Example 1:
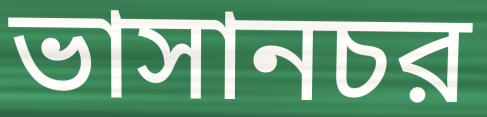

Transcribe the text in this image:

ভাসানচর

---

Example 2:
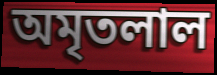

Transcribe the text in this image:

অমৃতলাল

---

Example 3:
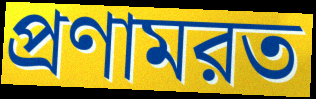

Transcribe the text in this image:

প্রণামরত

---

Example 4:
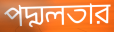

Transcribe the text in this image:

পদ্মলতার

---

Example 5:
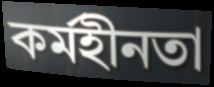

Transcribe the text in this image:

কর্মহীনতা